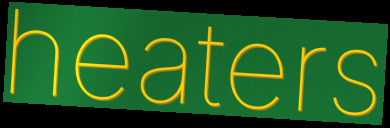
heaters